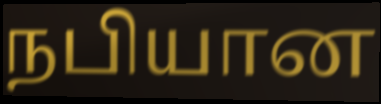
நபியான